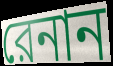
রেনান